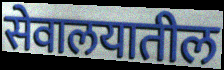
सेवालयातील